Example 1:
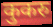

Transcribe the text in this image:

कुकरु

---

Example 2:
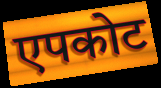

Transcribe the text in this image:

एपकोट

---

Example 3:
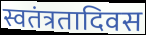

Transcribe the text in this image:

स्वतंत्रतादिवस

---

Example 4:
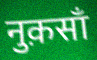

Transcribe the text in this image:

नुक़साँ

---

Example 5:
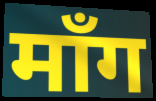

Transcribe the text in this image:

माँग